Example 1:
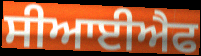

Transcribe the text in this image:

ਸੀਆਈਐਫ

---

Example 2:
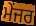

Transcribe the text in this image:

ਮੇਂਜਰ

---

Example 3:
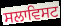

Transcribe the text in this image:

ਸਲਾਵਿਸਟ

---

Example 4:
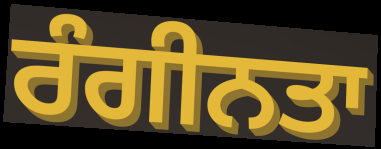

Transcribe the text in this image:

ਰੰਗੀਨਤਾ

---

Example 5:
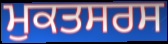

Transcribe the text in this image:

ਮੁਕਤਸਰਸ